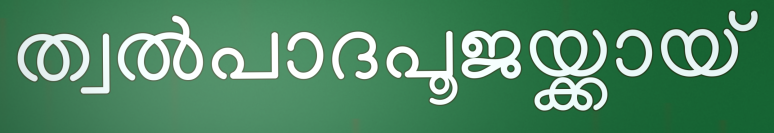
ത്വൽപാദപൂജയ്ക്കായ്